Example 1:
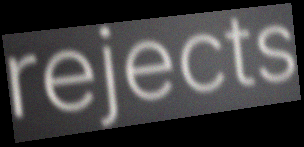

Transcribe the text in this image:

rejects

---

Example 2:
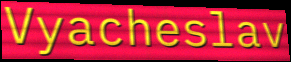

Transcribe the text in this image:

Vyacheslav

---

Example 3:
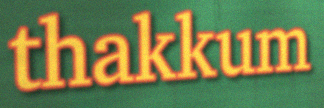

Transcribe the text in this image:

thakkum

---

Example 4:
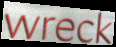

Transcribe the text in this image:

wreck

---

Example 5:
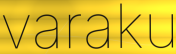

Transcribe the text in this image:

varaku